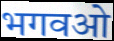
भगवओ